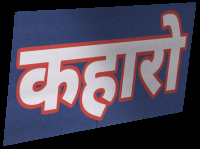
कहारो